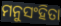
ମନୁସଂହିତା